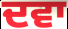
ਦਵਾ